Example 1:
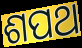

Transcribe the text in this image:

ଶପଥ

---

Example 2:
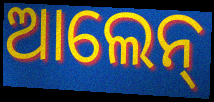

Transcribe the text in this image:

ଆଲେନ୍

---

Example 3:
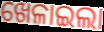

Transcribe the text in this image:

ଖେଳାଇଲା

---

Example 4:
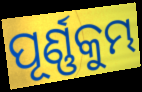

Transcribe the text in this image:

ପୂର୍ଣ୍ଣକୁମ୍ଭ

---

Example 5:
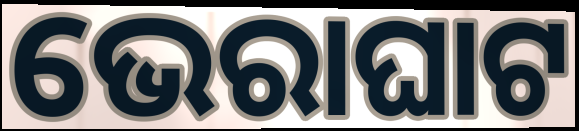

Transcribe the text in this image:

ଭେରାଘାଟ